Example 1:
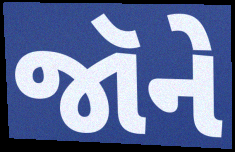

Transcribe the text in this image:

જૉને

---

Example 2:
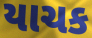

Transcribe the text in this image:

યાચક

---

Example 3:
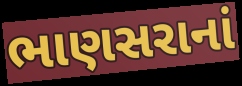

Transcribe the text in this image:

ભાણસરાનાં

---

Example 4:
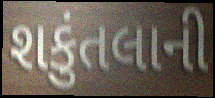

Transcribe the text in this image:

શકુંતલાની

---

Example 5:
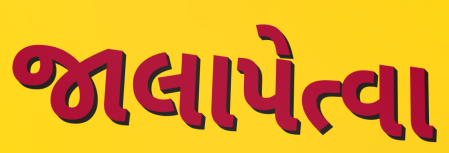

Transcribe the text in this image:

જાલાપેત્વા